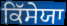
ਕਿੱਸੇਯਾ